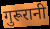
गुरूरानी